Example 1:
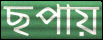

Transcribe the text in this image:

ছপায়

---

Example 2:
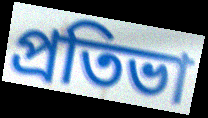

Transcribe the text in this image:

প্ৰতিভা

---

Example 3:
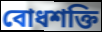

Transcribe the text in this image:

বোধশক্তি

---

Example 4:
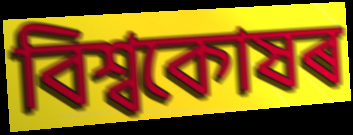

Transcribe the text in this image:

বিশ্বকোষৰ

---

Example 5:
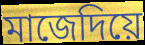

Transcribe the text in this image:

মাজেদিয়ে